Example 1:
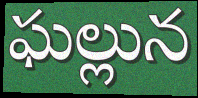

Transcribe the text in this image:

ఘల్లున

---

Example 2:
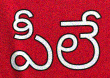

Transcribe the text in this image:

పీలే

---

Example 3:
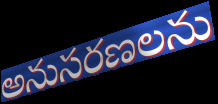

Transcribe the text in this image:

అనుసరణలను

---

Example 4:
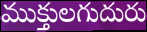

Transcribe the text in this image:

ముక్తులగుదురు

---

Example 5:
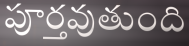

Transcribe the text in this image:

పూర్తవుతుంది